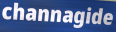
channagide